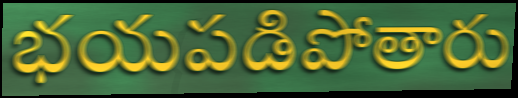
భయపడిపోతారు